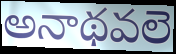
అనాథవలె